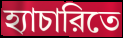
হ্যাচারিতে